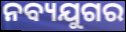
ନବ୍ୟଯୁଗର